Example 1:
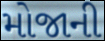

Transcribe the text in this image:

મોજાની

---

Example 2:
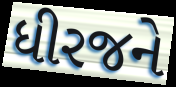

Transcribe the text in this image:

ધીરજને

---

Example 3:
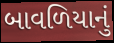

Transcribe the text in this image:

બાવળિયાનું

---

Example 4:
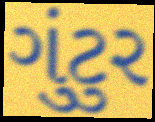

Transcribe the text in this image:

ગુંટુર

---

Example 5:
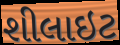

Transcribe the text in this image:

શીલાઇટ